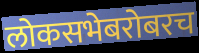
लोकसभेबरोबरच